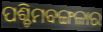
ପଶ୍ଚିମବଙ୍ଗଳାର